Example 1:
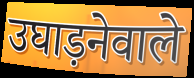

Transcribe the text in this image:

उघाड़नेवाले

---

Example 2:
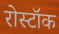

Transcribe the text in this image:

रोस्टॉक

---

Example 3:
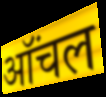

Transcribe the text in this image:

ऑंचल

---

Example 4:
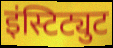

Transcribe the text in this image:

इंस्टिट्युट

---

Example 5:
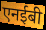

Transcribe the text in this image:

एनईबी